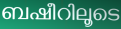
ബഷീറിലൂടെ